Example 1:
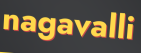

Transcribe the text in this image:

nagavalli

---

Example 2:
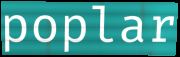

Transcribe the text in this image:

poplar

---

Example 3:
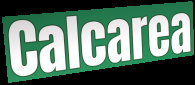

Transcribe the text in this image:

Calcarea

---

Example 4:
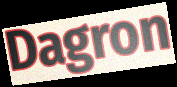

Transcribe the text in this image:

Dagron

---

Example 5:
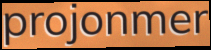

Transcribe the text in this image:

projonmer